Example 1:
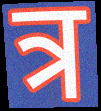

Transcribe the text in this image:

त्र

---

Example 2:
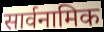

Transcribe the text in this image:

सार्वनामिक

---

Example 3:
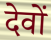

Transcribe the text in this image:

देवों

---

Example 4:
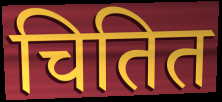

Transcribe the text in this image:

चितित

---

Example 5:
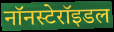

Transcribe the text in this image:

नॉनस्टेरॉइडल